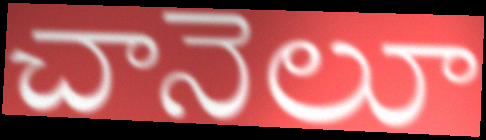
చానెలూ